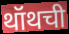
थॉथची